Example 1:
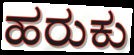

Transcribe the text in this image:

ಹರುಕು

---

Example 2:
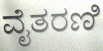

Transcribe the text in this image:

ವೈತರಣಿ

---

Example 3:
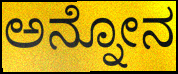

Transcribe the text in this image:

ಅನ್ನೋನ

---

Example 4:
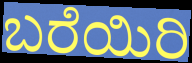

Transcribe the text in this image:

ಬರೆಯಿರಿ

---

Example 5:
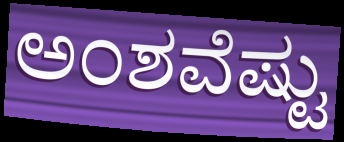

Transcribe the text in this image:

ಅಂಶವೆಷ್ಟು